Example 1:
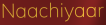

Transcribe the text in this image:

Naachiyaar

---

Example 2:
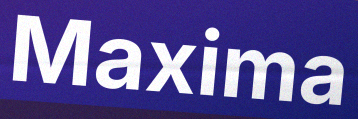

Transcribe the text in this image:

Maxima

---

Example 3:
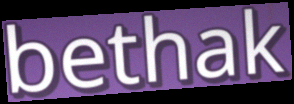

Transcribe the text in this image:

bethak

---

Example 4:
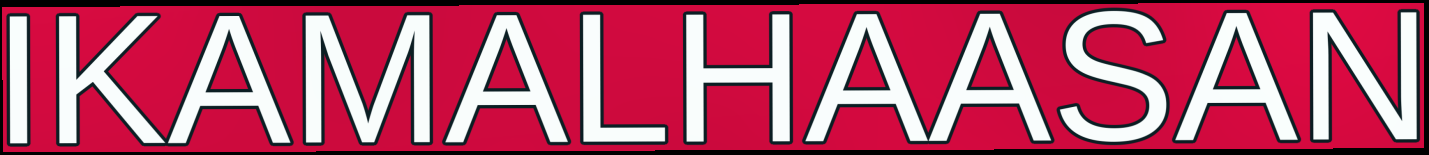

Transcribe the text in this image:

IKAMALHAASAN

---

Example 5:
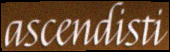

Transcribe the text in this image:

ascendisti